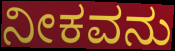
ನೀಕವನು